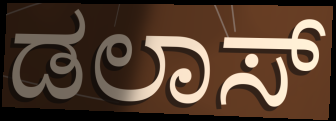
ಡಲಾಸ್